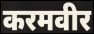
करमवीर